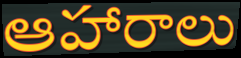
ఆహారాలు